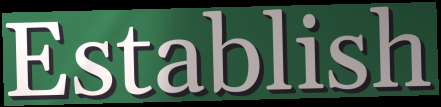
Establish